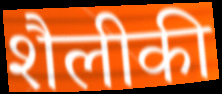
शैलीकी